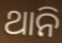
ଥାନି